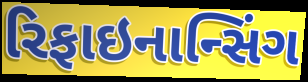
રિફાઇનાન્સિંગ